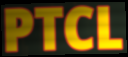
PTCL